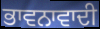
ਭਾਵਨਾਵਾਦੀ